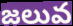
జలువ